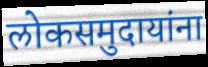
लोकसमुदायांना